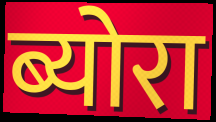
ब्योरा